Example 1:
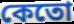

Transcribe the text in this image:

কেতো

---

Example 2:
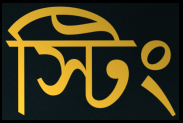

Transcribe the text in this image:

স্টিং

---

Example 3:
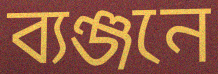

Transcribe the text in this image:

ব্যঞ্জনে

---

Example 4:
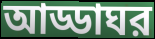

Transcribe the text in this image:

আড্ডাঘর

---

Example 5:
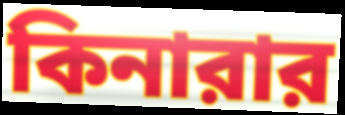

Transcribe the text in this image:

কিনারার